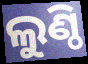
ଲୁଣ୍ଠି